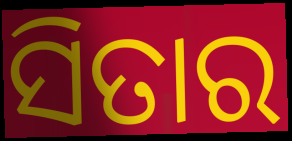
ସିତାର